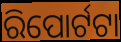
ରିପୋର୍ଟଟା